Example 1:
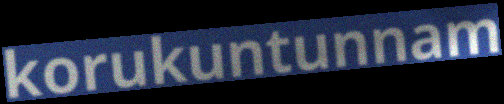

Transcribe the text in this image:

korukuntunnam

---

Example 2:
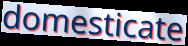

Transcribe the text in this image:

domesticate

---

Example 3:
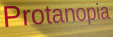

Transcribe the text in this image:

Protanopia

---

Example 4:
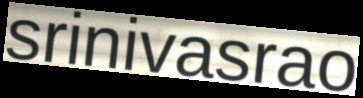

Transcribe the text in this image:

srinivasrao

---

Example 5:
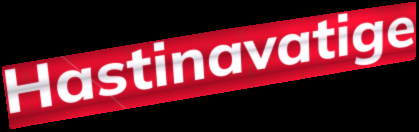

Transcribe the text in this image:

Hastinavatige